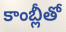
కాంబ్లీతో